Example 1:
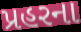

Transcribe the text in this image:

પ્રહરના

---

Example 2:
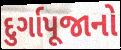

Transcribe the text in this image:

દુર્ગાપૂજાનો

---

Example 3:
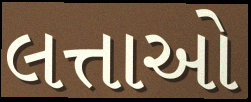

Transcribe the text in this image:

લત્તાઓ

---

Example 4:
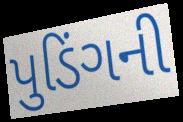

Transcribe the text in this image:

પુડિંગની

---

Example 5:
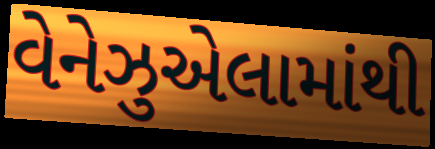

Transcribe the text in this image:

વેનેઝુએલામાંથી